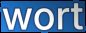
wort